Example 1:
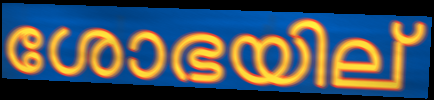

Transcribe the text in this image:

ശോഭയില്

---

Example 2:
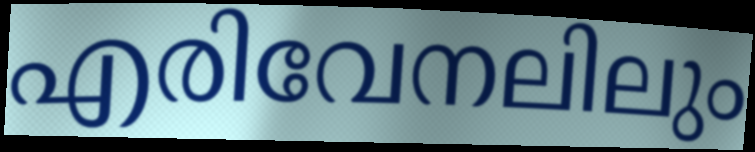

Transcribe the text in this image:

എരിവേനലിലും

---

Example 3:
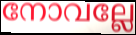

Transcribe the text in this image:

നോവല്ലേ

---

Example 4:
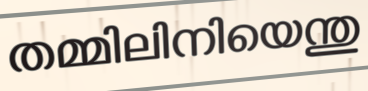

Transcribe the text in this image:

തമ്മിലിനിയെന്തു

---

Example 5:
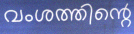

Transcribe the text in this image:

വംശത്തിന്റെ